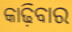
କାଢ଼ିବାର